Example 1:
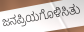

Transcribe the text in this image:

ಜನಪ್ರಿಯಗೊಳಿಸಿತು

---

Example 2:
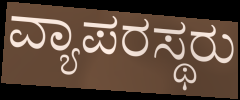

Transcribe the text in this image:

ವ್ಯಾಪರಸ್ಥರು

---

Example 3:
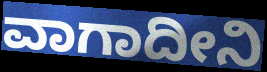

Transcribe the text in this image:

ವಾಗಾದೀನಿ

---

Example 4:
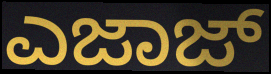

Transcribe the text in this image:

ಎಜಾಜ್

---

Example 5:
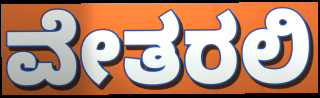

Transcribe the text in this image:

ವೇತರಲಿ